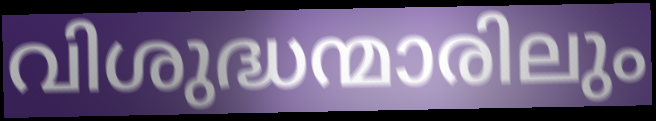
വിശുദ്ധന്മാരിലും